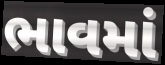
ભાવમાં